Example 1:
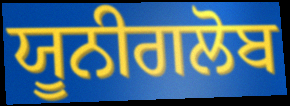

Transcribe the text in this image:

ਯੂਨੀਗਲੋਬ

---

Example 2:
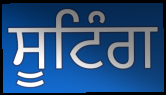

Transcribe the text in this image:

ਸੂਟਿੰਗ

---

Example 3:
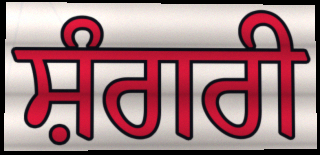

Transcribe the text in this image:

ਸ਼ੰਗਰੀ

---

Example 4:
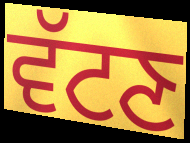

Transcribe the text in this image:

ਵੱਟਣ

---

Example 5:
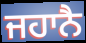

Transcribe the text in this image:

ਜਹਾਨੈ